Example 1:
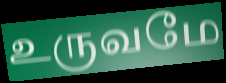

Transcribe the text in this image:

உருவமே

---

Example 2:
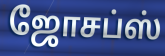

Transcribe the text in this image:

ஜோசப்ஸ்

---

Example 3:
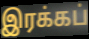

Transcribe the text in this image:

இரக்கப்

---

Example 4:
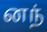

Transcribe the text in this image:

னந்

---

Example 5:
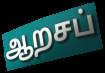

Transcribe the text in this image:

ஆறசப்